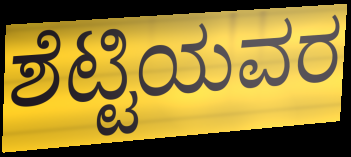
ಶೆಟ್ಟಿಯವರ